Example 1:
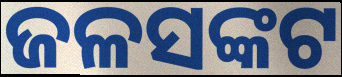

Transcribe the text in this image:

ଜଳସଙ୍କଟ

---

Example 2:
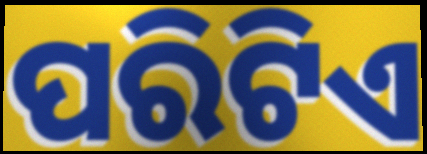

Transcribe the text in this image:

ପରିଟିଏ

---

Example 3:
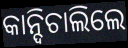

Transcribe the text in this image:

କାନ୍ଦିଚାଲିଲେ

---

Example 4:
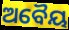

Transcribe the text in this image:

ଅବୈୟ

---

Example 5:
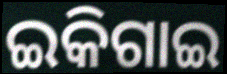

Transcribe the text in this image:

ଇକିଗାଇ